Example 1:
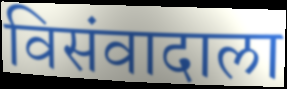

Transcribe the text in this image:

विसंवादाला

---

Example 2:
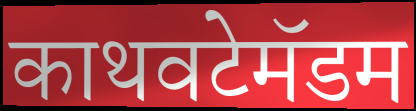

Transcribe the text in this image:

काथवटेमॅडम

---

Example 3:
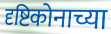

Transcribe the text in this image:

दृष्टिकोनाच्या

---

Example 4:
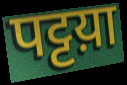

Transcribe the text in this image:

पट्टय़ा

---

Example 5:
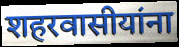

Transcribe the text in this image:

शहरवासीयांना